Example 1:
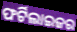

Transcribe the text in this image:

ଫର୍ଟିଲାଇଜର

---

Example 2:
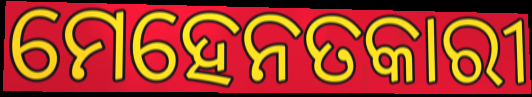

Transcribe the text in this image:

ମେହେନତକାରୀ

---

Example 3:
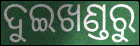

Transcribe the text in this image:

ଦୁଇଖଣ୍ଡରୁ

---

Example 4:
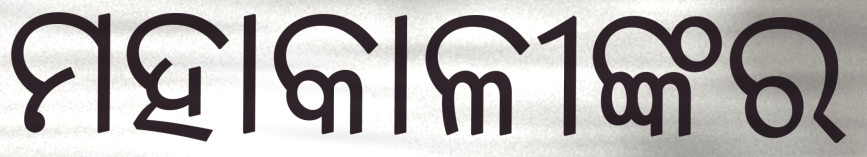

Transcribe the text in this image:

ମହାକାଳୀଙ୍କର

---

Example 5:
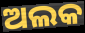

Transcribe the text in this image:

ଅଲକ